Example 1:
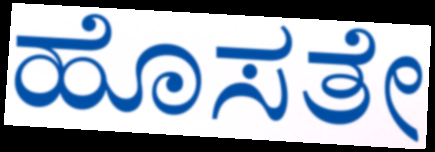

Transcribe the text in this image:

ಹೊಸತೇ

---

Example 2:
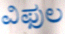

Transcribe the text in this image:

ವಿಫುಲ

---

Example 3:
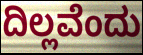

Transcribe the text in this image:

ದಿಲ್ಲವೆಂದು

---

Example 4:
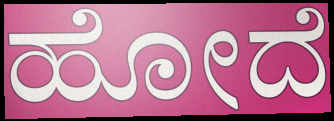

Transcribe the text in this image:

ಹೋದೆ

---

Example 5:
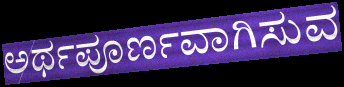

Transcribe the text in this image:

ಅರ್ಥಪೂರ್ಣವಾಗಿಸುವ